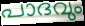
പാദവും